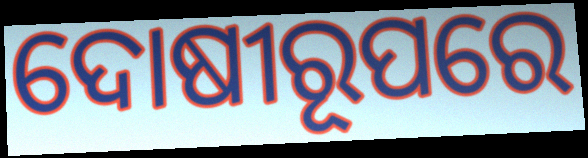
ଦୋଷୀରୂପରେ